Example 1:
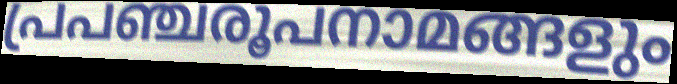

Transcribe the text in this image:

പ്രപഞ്ചരൂപനാമങ്ങളും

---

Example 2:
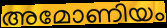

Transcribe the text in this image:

അമോണിയം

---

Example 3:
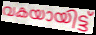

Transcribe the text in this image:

വകയായിട്ട്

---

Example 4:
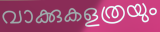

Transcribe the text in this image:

വാക്കുകളത്രയും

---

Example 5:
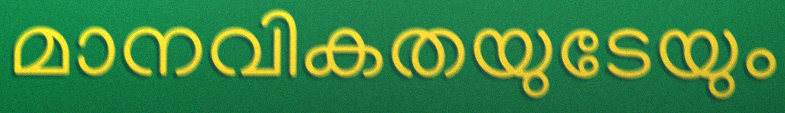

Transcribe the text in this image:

മാനവികതയുടേയും